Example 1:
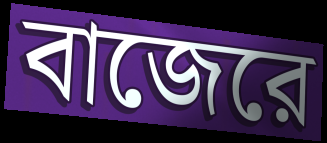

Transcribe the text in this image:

বাজেরে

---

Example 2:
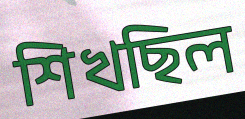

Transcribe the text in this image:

শিখছিল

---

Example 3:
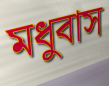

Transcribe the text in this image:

মধুবাস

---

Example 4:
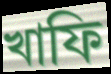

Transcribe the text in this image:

খাফি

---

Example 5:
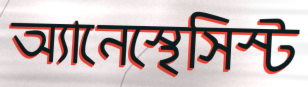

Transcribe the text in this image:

অ্যানেস্থেসিস্ট